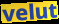
velut